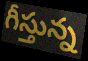
గీస్తున్న